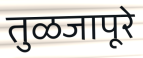
तुळजापूरे